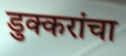
डुक्करांचा